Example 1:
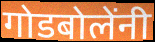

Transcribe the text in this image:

गोडबोलेंनी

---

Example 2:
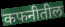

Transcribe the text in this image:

कफनीतील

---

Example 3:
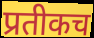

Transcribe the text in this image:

प्रतीकच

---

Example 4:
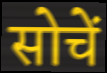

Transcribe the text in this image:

सोचें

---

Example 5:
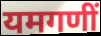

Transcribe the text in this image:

यमगणीं